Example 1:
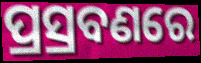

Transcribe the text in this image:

ପ୍ରସ୍ରବଣରେ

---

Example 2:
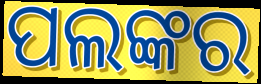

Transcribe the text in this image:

ପଲଙ୍କର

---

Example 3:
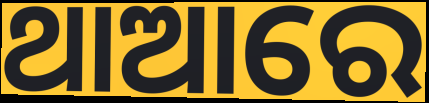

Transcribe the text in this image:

ଥାଆରେ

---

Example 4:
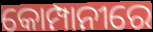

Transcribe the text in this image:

କୋମ୍ପାନୀରେ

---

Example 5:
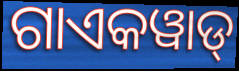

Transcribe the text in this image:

ଗାଏକୱାଡ୍